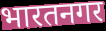
भारतनगर